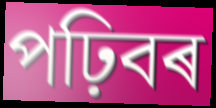
পঢ়িবৰ